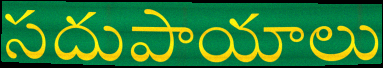
సదుపాయాలు